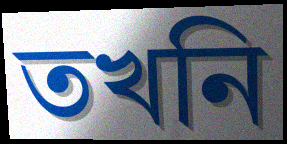
তখনি